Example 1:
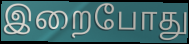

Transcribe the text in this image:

இறைபோது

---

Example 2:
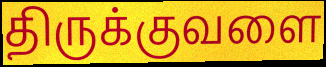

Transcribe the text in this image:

திருக்குவளை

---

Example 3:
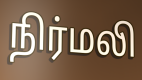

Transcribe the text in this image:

நிர்மலி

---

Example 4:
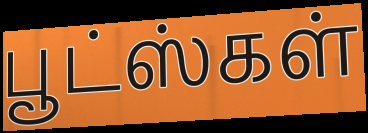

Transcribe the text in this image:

பூட்ஸ்கள்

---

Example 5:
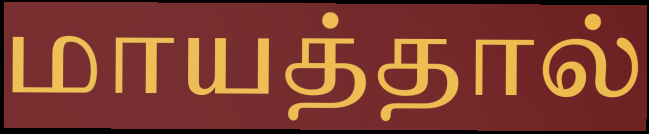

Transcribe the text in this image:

மாயத்தால்